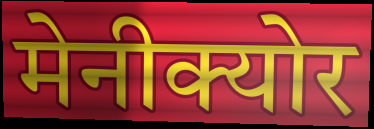
मेनीक्योर